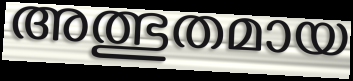
അത്ഭുതമായ